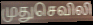
முதுசெவிலி